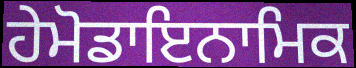
ਹੇਮੋਡਾਇਨਾਮਿਕ